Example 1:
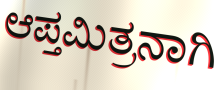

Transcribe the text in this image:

ಆಪ್ತಮಿತ್ರನಾಗಿ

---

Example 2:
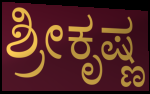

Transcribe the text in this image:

ಶ್ರೀಕೃಷ್ಣ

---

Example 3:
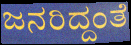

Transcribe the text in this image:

ಜನರಿದ್ದಂತೆ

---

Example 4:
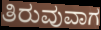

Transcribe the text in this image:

ತಿರುವುವಾಗ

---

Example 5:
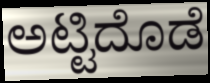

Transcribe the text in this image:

ಅಟ್ಟಿದೊಡೆ